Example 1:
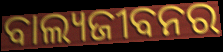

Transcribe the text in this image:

ବାଲ୍ୟଜୀବନର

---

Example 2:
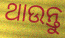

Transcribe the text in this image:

ଥାଉନ୍ତୁ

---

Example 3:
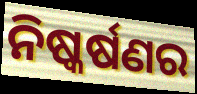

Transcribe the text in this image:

ନିଷ୍କର୍ଷଣର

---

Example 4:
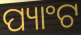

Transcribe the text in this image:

ପ୍ୟାଂଟ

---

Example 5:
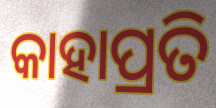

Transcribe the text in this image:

କାହାପ୍ରତି